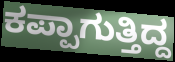
ಕಪ್ಪಾಗುತ್ತಿದ್ದ